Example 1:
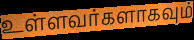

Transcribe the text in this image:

உள்ளவர்களாகவும்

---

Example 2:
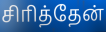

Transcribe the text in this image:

சிரித்தேன்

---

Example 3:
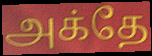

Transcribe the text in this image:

அக்தே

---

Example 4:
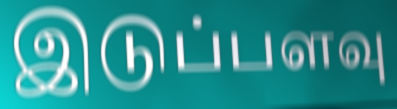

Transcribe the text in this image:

இடுப்பளவு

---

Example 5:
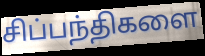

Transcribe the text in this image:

சிப்பந்திகளை